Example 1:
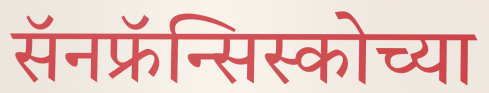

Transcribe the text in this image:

सॅनफ्रॅन्सिस्कोच्या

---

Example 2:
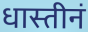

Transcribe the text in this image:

धास्तीनं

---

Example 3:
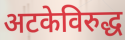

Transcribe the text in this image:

अटकेविरुद्ध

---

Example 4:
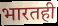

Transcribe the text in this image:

भारतही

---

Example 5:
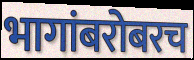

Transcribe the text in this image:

भागांबरोबरच